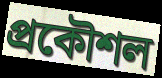
প্ৰকৌশল